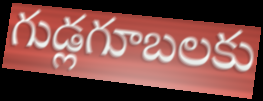
గుడ్లగూబలకు